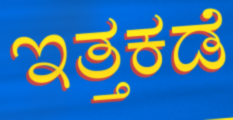
ಇತ್ತಕಡೆ